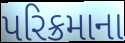
પરિક્રમાના